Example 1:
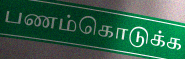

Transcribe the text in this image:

பணம்கொடுக்க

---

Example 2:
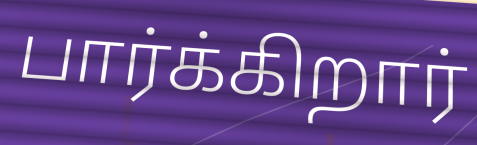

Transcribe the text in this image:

பார்க்கிறார்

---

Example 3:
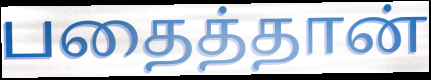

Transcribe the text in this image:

பதைத்தான்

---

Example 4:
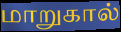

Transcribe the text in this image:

மாறுகால்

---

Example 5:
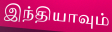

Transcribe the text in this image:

இந்தியாவும்